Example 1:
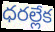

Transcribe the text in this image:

ధరల్లేక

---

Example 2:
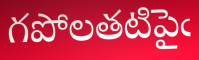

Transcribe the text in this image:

గపోలతటిపైఁ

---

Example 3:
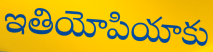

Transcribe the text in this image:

ఇతియోపియాకు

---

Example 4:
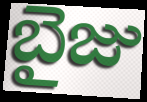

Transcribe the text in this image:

బైజు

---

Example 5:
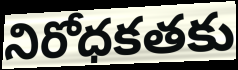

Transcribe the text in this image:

నిరోధకతకు